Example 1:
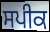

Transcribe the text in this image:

ਸਪੀਕ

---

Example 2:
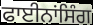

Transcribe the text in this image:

ਫਾਈਨਾਂਸਿੰਗ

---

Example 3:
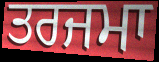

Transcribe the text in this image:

ਤਰਜਮਾ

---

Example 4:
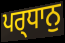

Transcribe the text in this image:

ਪਰ੍ਧਾਨੁ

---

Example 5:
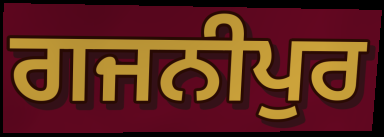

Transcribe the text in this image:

ਗਜਨੀਪੁਰ